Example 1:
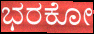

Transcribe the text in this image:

ಭರಕೋ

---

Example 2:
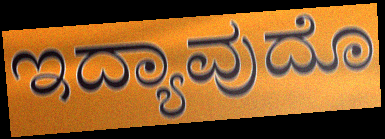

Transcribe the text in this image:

ಇದ್ಯಾವುದೊ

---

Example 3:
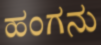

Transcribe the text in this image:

ಹಂಗನು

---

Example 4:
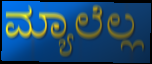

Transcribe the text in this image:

ಮ್ಯಾಲೆಲ್ಲ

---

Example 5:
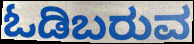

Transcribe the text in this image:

ಓಡಿಬರುವ